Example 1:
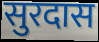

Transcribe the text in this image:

सुरदास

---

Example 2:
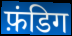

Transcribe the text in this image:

फ़ंडिग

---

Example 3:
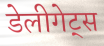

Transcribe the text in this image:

डेलीगेट्स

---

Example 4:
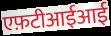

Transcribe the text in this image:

एफ़टीआईआई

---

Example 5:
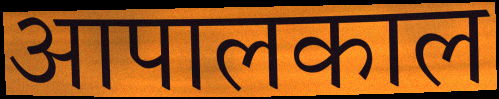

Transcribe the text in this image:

आपालकाल